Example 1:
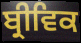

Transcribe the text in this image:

ਬ੍ਰੀਵਿਕ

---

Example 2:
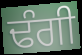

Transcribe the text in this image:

ਢੰਗੀ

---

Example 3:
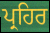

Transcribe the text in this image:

ਪ੍ਰਹਿਰ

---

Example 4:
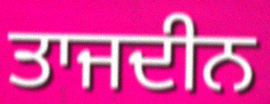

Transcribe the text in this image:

ਤਾਜਦੀਨ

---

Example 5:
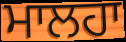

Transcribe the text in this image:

ਮਾਲਹਾ